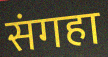
संगहा